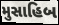
મુસાહિબ